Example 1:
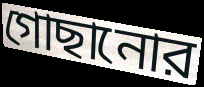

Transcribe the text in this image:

গোছানোর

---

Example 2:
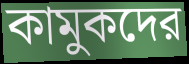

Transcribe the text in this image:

কামুকদের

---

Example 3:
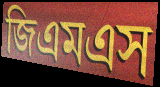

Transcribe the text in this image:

জিএমএস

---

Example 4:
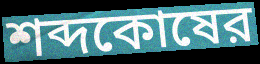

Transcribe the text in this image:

শব্দকোষের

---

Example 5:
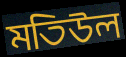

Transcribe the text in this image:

মতিউল